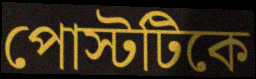
পোস্টটিকে